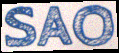
SAO